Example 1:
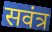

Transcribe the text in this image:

सवंत्र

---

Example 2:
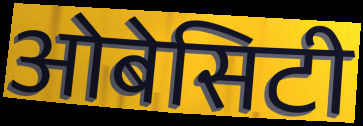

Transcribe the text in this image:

ओबेसिटी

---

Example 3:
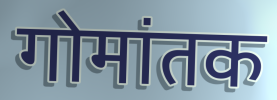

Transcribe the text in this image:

गोमांतक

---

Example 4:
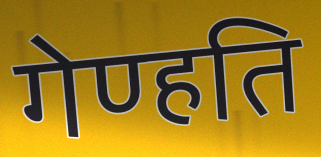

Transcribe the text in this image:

गेण्हति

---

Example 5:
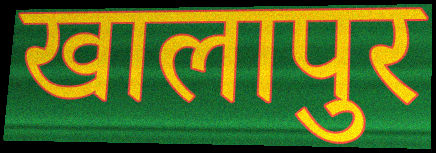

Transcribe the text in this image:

खालापुर